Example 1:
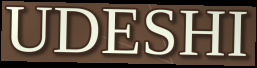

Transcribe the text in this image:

UDESHI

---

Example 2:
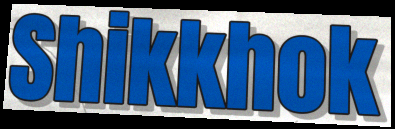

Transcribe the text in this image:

Shikkhok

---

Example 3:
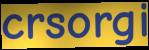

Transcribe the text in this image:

crsorgi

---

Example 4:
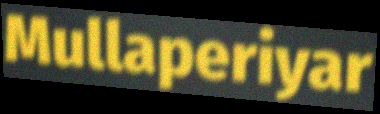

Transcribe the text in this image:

Mullaperiyar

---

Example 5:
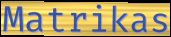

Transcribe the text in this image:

Matrikas